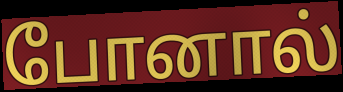
போனால்